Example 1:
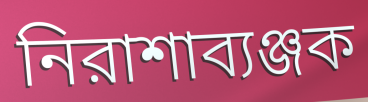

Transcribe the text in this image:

নিরাশাব্যঞ্জক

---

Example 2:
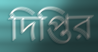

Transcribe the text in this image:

দিপ্তির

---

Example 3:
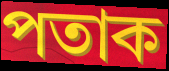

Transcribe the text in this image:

পতাক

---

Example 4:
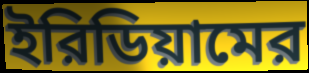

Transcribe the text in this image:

ইরিডিয়ামের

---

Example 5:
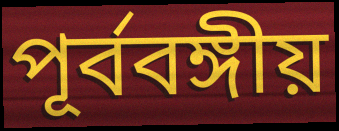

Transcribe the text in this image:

পূর্ববঙ্গীয়